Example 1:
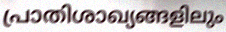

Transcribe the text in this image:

പ്രാതിശാഖ്യങ്ങളിലും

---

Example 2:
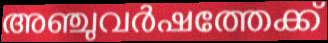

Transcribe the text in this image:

അഞ്ചുവർഷത്തേക്ക്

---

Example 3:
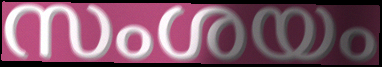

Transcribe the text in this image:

സംശയം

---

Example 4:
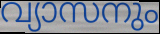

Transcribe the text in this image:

വ്യാസനും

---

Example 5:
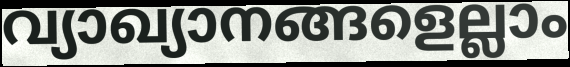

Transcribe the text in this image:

വ്യാഖ്യാനങ്ങളെല്ലാം